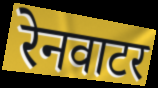
रेनवाटर